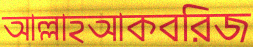
আল্লাহআকবরিজ